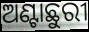
ଅଣ୍ଟାଛୁରୀ